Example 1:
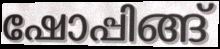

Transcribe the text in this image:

ഷോപ്പിങ്ങ്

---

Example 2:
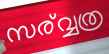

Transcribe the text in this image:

സര്വ്വത്ര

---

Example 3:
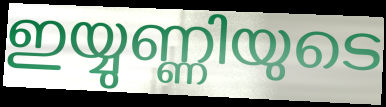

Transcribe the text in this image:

ഇയ്യുണ്ണിയുടെ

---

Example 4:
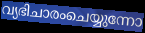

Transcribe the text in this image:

വ്യഭിചാരംചെയ്യുന്നോ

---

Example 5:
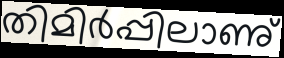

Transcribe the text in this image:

തിമിർപ്പിലാണു്